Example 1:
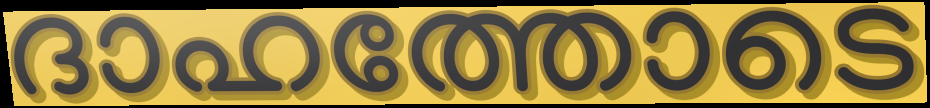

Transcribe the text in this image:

ദാഹത്തോടെ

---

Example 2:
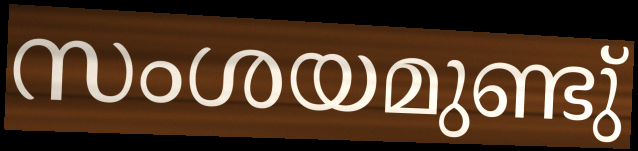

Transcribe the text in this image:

സംശയമുണ്ടു്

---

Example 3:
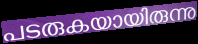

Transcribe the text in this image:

പടരുകയായിരുന്നു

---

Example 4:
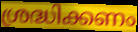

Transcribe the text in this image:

ശ്രദ്ധിക്കണം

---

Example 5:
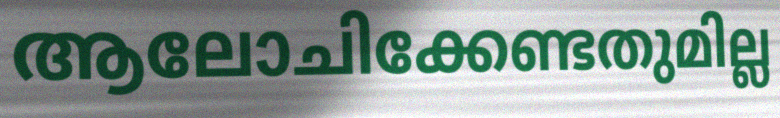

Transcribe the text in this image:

ആലോചിക്കേണ്ടതുമില്ല